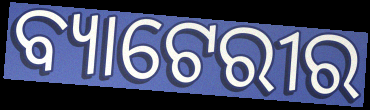
ବ୍ୟାଟେରୀର